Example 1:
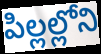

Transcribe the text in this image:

పిల్లల్లోని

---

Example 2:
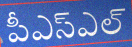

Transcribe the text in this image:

పీఎస్ఎల్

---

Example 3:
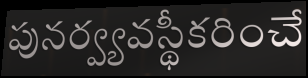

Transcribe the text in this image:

పునర్వ్యవస్థీకరించే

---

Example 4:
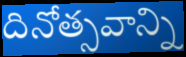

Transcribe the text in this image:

దినోత్సవాన్ని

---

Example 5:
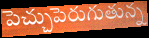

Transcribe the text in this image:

పెచ్చుపెరుగుతున్న